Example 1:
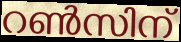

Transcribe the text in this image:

റൺസിന്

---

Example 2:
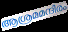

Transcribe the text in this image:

ആശ്രമമന്ദിരം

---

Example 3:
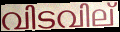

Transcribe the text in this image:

വിടവില്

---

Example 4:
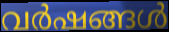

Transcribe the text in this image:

വർഷങ്ങൾ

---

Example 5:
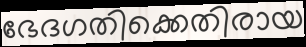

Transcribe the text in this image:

ഭേദഗതിക്കെതിരായ